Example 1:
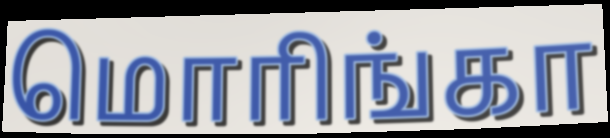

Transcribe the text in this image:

மொரிங்கா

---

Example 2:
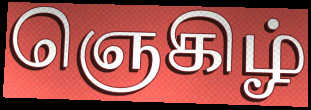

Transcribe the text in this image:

ஞெகிழ்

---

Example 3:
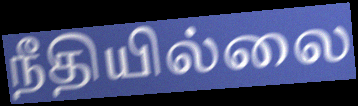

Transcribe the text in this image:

நீதியில்லை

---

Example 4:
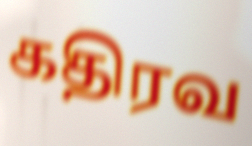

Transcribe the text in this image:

கதிரவ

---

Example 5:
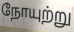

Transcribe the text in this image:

நோயுற்று